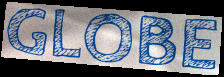
GLOBE